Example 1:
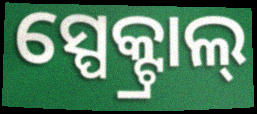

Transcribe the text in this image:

ସ୍ପେକ୍ଟ୍ରାଲ୍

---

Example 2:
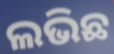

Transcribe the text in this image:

ଲଭିଛ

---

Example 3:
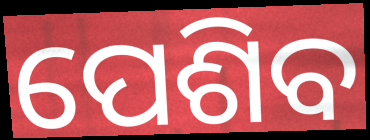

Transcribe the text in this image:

ପେଶିବ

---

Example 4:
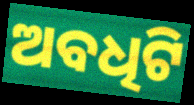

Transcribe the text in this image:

ଅବଧିଟି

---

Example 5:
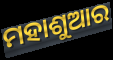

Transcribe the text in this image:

ମହାଶୁଆର